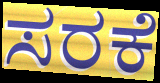
ಸರಕೆ